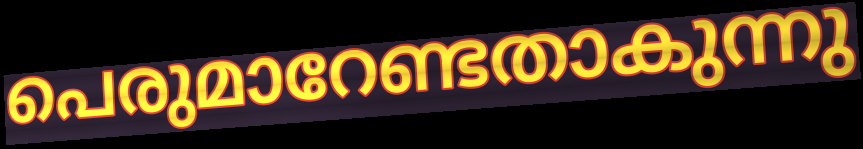
പെരുമാറേണ്ടതാകുന്നു